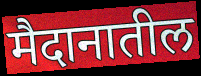
मैदानातील